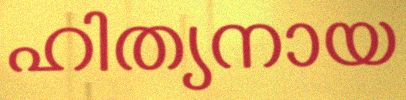
ഹിത്യനായ